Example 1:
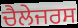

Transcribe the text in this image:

ਚੈਲੇਜਰਸ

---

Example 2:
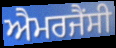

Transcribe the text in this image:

ਐਮਰਜੈਂਸੀ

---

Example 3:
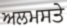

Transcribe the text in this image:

ਅਲਮਸਤੇ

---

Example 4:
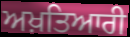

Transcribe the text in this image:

ਅਖ਼ਤਿਆਰੀ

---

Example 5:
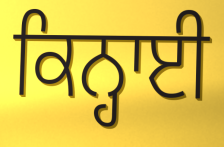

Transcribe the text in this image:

ਕਿਨ੍ਹਾਈ